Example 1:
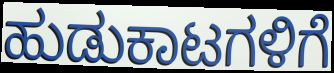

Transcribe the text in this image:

ಹುಡುಕಾಟಗಳಿಗೆ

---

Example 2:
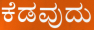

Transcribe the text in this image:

ಕೆಡವುದು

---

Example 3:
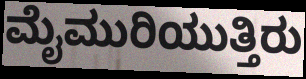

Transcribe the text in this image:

ಮೈಮುರಿಯುತ್ತಿರು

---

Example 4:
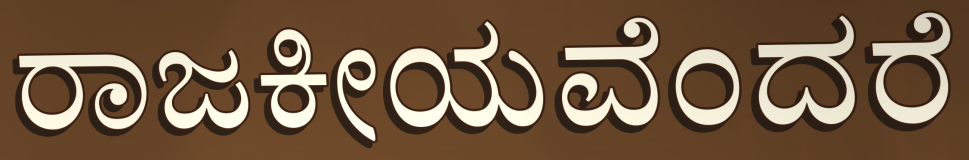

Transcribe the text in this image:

ರಾಜಕೀಯವೆಂದರೆ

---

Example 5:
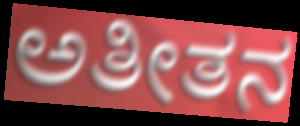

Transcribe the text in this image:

ಅತೀತನ